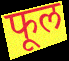
फूल